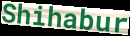
Shihabur